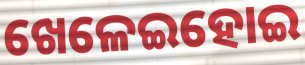
ଖେଳେଇହୋଇ